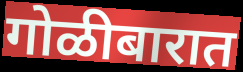
गोळीबारात